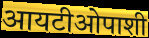
आयटीओपाशी